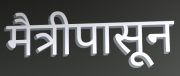
मैत्रीपासून